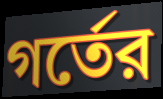
গর্তের